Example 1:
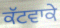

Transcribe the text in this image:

ਕੱਟਵਾਕੇ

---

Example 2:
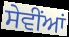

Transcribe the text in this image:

ਸੇਵੀਂਆਂ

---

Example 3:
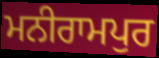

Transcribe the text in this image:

ਮਨੀਰਾਮਪੁਰ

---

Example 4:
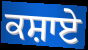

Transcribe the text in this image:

ਕਸ਼ਾਏ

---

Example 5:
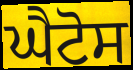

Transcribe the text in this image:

ਘੈਟੋਸ